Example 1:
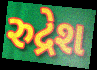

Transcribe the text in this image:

રુદ્રેશ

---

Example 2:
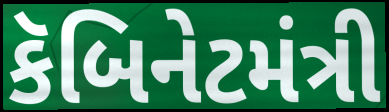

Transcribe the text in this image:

કૅબિનેટમંત્રી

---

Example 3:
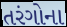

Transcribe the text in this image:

તરંગોના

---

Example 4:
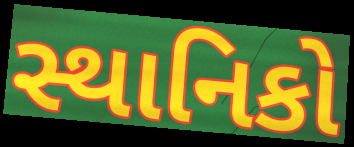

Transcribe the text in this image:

સ્થાનિકો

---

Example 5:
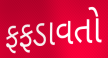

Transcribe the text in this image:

ફફડાવતો